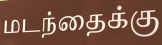
மடந்தைக்கு